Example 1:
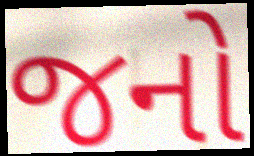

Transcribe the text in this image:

જનો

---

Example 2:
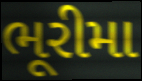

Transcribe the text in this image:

ભૂરીમા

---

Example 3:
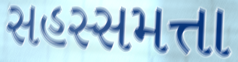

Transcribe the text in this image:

સહસ્સમત્તા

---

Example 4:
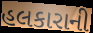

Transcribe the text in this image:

હલકારાની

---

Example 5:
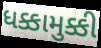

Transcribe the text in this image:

ધક્કામુક્કી